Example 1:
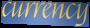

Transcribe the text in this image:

currency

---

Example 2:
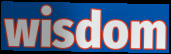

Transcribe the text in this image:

wisdom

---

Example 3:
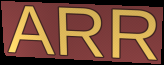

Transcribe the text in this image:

ARR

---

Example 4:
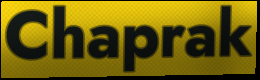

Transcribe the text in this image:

Chaprak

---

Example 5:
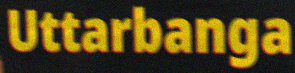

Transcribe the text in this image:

Uttarbanga